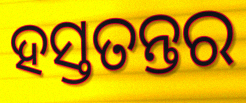
ହସ୍ତତନ୍ତର